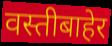
वस्तीबाहेर